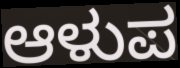
ಆಳುಪ